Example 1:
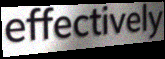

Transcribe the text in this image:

effectively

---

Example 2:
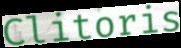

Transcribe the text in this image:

Clitoris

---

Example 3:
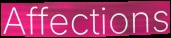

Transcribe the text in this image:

Affections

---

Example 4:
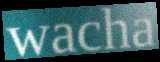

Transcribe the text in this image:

wacha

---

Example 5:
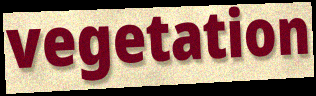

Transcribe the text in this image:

vegetation